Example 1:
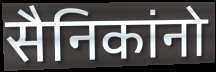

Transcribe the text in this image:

सैनिकांनो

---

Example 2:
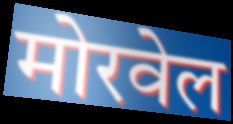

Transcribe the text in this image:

मोरवेल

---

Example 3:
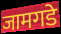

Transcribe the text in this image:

जामगडे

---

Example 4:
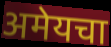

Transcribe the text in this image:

अमेयचा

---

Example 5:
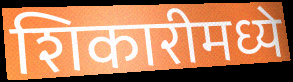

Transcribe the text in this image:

शिकारीमध्ये